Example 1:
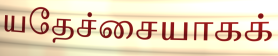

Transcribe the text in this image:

யதேச்சையாகக்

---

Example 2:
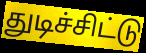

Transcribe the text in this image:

துடிச்சிட்டு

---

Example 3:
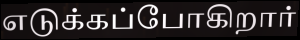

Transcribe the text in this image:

எடுக்கப்போகிறார்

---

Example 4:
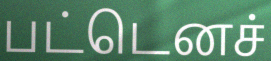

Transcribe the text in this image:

பட்டெனச்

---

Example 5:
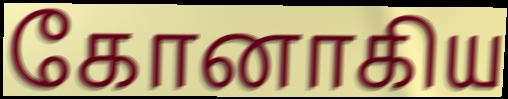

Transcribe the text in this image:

கோனாகிய